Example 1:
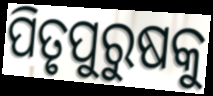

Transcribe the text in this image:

ପିତୃପୁରୁଷକୁ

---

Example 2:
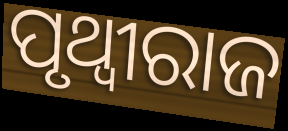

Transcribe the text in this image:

ପୃଥ୍ବୀରାଜ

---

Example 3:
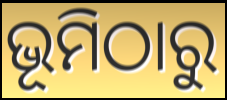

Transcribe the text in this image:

ଭୂମିଠାରୁ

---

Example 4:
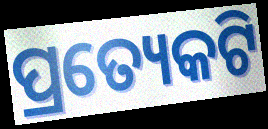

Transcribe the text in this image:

ପ୍ରତ୍ୟେକଟି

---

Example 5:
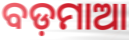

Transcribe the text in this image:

ବଡ଼ମାଆ